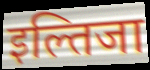
इल्तिजा